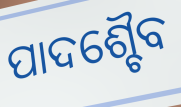
ପାଦଶ୍ଚୈବ